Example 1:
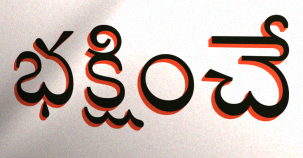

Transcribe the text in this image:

భక్షించే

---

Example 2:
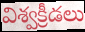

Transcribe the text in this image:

విశ్వక్రీడలు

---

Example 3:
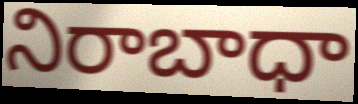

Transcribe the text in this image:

నిరాబాధా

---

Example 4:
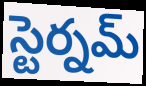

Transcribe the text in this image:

స్టెర్నమ్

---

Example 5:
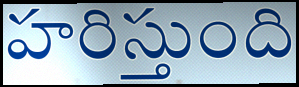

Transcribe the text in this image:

హరిస్తుంది